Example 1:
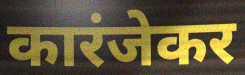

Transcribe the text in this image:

कारंजेकर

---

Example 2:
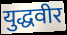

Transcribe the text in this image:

युद्धवीर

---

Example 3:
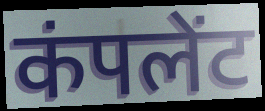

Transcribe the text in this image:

कंपलेंट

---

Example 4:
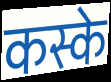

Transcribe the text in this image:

कस्के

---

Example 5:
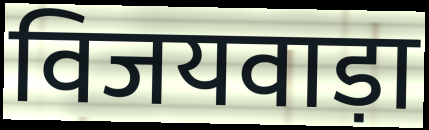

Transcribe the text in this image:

विजयवाड़ा